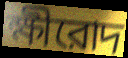
ক্ষীরোদ